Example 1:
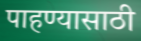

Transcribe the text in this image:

पाहण्यासाठी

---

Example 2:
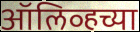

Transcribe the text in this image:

ऑलिव्हच्या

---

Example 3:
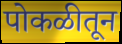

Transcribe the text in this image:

पोकळीतून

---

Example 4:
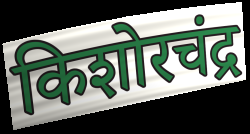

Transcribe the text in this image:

किशोरचंद्र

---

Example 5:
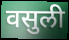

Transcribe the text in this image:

वसुली